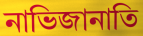
নাভিজানাতি